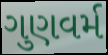
ગુણવર્મ